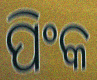
ପିଂକ